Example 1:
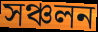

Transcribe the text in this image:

সঞ্চলন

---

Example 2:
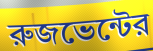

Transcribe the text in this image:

রুজভেন্টের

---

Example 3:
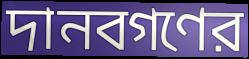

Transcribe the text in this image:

দানবগণের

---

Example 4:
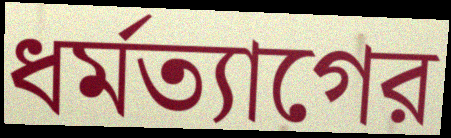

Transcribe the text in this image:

ধর্মত্যাগের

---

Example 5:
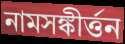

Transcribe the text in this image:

নামসঙ্কীর্ত্তন